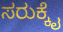
ಸರುಕ್ಕೈ